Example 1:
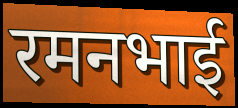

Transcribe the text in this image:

रमनभाई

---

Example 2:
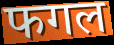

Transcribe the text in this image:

फगल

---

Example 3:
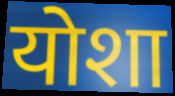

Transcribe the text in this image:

योशा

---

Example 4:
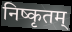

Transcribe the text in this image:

निष्कृतम्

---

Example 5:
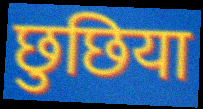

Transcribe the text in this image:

छुछिया